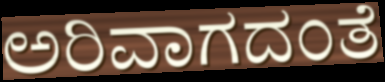
ಅರಿವಾಗದಂತೆ